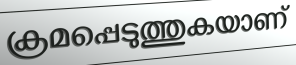
ക്രമപ്പെടുത്തുകയാണ്